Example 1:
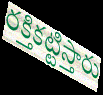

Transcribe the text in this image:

రక్తికట్టిస్తారు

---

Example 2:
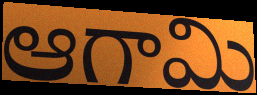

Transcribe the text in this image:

ఆగామి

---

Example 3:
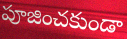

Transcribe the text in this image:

పూజించకుండా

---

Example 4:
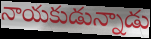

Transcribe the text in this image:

నాయకుడున్నాడు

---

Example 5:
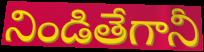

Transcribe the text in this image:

నిండితేగానీ